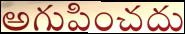
అగుపించదు